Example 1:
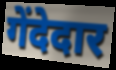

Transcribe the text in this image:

गेंदेदार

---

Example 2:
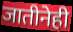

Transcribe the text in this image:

जातीनेही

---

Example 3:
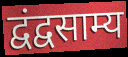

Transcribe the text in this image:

द्वंद्वसाम्य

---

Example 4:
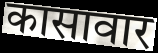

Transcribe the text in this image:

कासावार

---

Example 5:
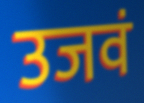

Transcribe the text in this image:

उजवं